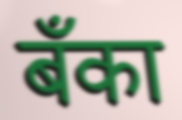
बँका